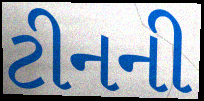
ટીનની